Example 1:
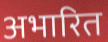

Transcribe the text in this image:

अभारित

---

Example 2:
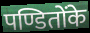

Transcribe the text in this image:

पण्डितोंके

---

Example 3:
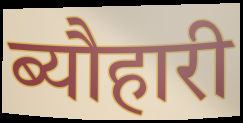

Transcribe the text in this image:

ब्यौहारी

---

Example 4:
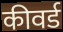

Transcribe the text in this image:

कीवर्ड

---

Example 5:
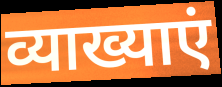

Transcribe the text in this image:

व्याख्याएं